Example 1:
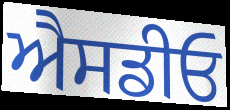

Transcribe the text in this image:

ਐਸਡੀਓ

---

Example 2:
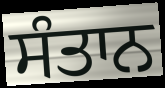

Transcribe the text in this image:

ਸੰਤਾਨ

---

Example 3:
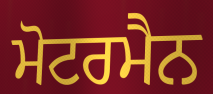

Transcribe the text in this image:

ਮੋਟਰਮੈਨ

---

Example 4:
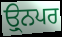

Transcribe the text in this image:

ਉ੍ਨਪਰ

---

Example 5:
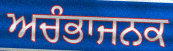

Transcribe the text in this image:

ਅਚੰਭਾਜਨਕ